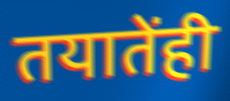
तयातेंही